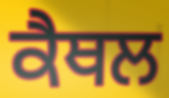
ਕੈਥਲ